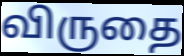
விருதை